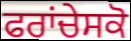
ਫਰਾਂਚੇਸਕੋ